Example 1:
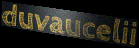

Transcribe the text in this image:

duvaucelii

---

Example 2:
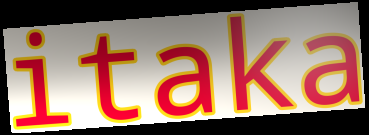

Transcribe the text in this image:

itaka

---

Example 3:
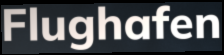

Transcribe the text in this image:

Flughafen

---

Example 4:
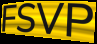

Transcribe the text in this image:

FSVP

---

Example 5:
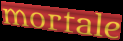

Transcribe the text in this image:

mortale